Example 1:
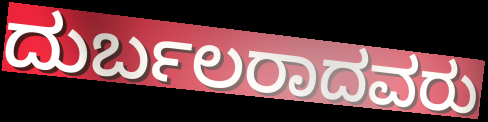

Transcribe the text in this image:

ದುರ್ಬಲರಾದವರು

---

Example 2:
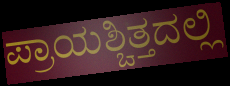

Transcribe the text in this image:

ಪ್ರಾಯಶ್ಚಿತ್ತದಲ್ಲಿ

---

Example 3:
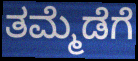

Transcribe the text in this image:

ತಮ್ಮೆಡೆಗೆ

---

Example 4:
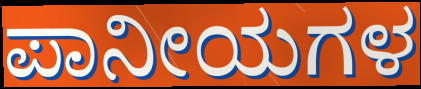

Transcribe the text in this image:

ಪಾನೀಯಗಳ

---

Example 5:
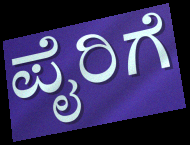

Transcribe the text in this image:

ಪೈರಿಗೆ